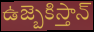
ఉజ్బెకిస్తాన్